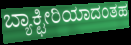
ಬ್ಯಾಕ್ಟೀರಿಯಾದಂತಹ